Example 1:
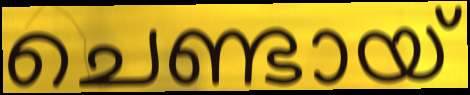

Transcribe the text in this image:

ചെണ്ടായ്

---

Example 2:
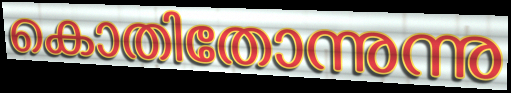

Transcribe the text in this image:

കൊതിതോന്നുന്നു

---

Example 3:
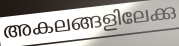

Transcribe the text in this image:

അകലങ്ങളിലേക്കു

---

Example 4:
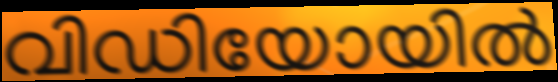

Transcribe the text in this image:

വിഡിയോയിൽ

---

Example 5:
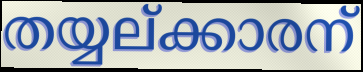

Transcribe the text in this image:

തയ്യല്ക്കാരന്